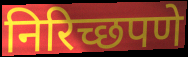
निरिच्छपणे